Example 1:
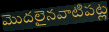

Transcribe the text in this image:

మొదలైనవాటిపట్ల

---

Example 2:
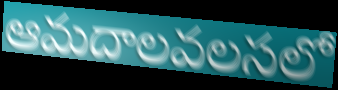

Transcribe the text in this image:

ఆమదాలవలసలో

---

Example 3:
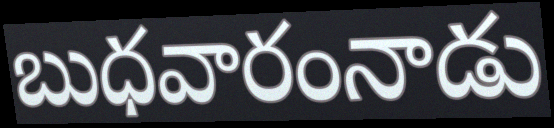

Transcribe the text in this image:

బుధవారంనాడు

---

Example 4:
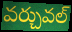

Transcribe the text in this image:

వర్చువల్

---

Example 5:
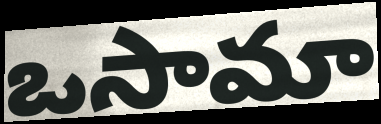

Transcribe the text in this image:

ఒసామా